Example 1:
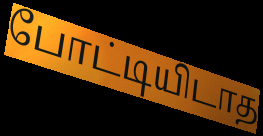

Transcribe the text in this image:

போட்டியிடாத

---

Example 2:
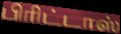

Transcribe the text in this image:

பிரிட்டாஸ்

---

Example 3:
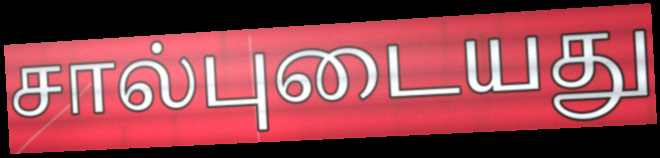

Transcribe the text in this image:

சால்புடையது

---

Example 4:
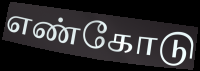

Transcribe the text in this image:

எண்கோடு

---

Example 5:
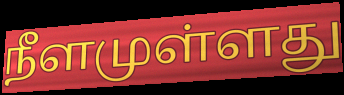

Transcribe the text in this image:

நீளமுள்ளது